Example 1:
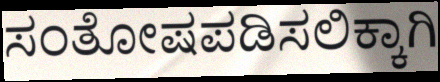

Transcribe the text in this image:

ಸಂತೋಷಪಡಿಸಲಿಕ್ಕಾಗಿ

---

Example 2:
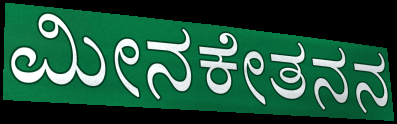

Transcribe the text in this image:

ಮೀನಕೇತನನ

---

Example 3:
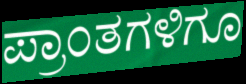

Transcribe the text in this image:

ಪ್ರಾಂತಗಳಿಗೂ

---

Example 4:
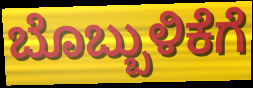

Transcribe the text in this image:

ಬೊಬ್ಬುಳಿಕೆಗೆ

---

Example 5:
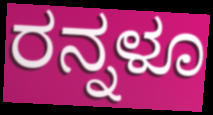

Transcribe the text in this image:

ರನ್ನಳೂ